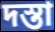
দস্তা